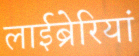
लाईब्रेरियां